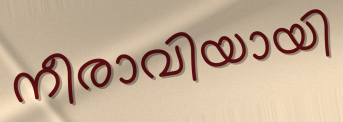
നീരാവിയായി